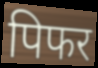
पिफर